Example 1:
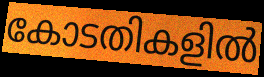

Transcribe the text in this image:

കോടതികളിൽ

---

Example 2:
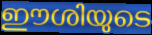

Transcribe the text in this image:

ഈശിയുടെ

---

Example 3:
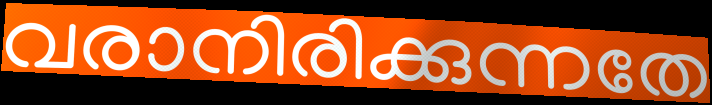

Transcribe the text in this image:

വരാനിരിക്കുന്നതേ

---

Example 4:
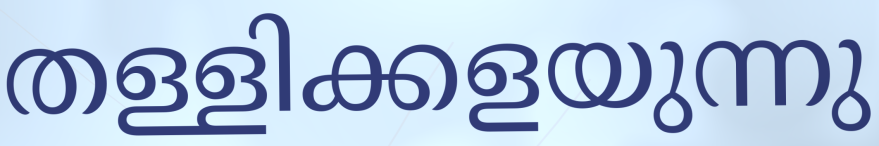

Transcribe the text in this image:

തള്ളിക്കളയുന്നു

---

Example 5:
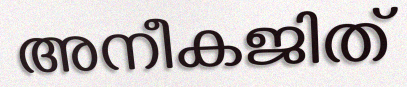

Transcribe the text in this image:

അനീകജിത്